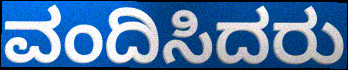
ವಂದಿಸಿದರು